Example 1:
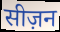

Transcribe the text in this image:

सीज़न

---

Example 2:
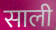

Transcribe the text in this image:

साली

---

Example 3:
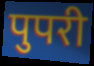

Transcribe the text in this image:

पुपरी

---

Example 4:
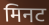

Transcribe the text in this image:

मिनट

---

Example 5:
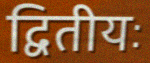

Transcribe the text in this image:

द्वितीयः